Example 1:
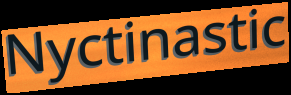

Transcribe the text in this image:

Nyctinastic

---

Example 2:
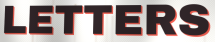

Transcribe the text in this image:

LETTERS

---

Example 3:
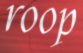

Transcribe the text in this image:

roop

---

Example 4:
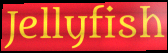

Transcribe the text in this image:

Jellyfish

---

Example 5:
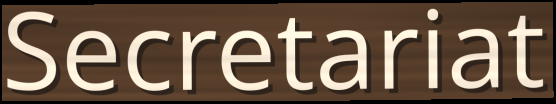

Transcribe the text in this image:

Secretariat